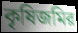
কৃষিজমির